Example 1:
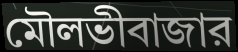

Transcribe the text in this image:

মৌলভীবাজার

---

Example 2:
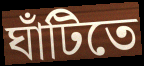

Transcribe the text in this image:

ঘাঁটিতে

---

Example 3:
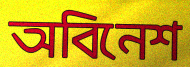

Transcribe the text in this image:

অবিনেশ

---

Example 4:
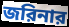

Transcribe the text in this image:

জরিনার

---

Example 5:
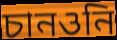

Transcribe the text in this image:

চানওনি